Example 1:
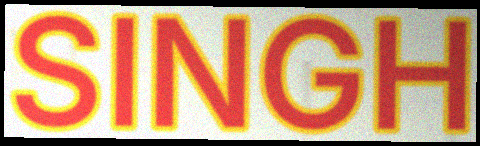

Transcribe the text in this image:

SINGH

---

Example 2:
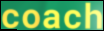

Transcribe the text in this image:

coach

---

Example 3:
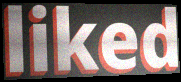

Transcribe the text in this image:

liked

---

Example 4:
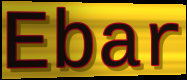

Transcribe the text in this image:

Ebar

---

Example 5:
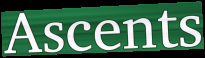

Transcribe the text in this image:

Ascents